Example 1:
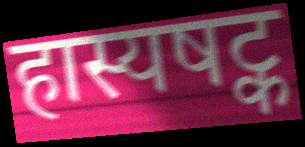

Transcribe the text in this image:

हास्यषट्क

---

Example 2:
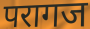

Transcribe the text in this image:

परागज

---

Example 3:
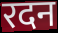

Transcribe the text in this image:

रदन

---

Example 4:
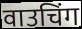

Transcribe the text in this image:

वाउचिंग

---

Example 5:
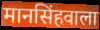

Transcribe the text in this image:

मानसिंहवाला